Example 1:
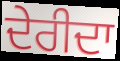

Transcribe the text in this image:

ਦੇਰੀਦਾ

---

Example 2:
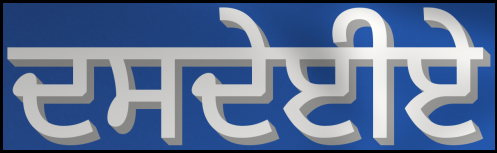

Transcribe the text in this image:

ਦਸਦੇਈਏ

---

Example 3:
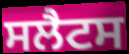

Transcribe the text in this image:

ਸਲੈਟਸ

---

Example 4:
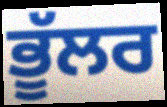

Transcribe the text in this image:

ਭੂੱਲਰ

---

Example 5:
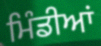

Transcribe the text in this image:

ਮਿੰਡੀਆਂ